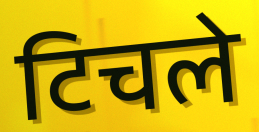
टिचले